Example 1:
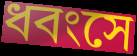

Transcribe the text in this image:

ধবংসে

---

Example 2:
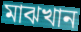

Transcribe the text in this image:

মাঝখান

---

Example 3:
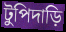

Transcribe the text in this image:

টুপিদাড়ি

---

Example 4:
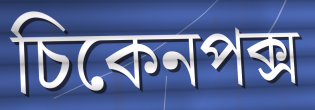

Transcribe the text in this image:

চিকেনপক্স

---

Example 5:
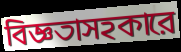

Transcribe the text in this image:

বিজ্ঞতাসহকারে